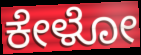
ಕೇಳೋ